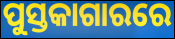
ପୁସ୍ତକାଗାରରେ